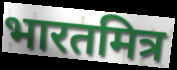
भारतमित्र